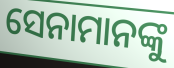
ସେନାମାନଙ୍କୁ